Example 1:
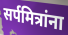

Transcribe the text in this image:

सर्पमित्रांना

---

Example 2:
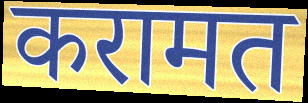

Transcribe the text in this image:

करामत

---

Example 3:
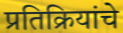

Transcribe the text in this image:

प्रतिक्रियांचे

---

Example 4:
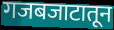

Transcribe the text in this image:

गजबजाटातून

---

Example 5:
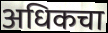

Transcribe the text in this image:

अधिकचा